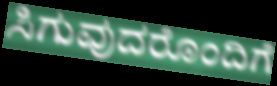
ಸಿಗುವುದರೊಂದಿಗೆ